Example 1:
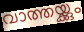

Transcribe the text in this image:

വാത്തയ്ക്കും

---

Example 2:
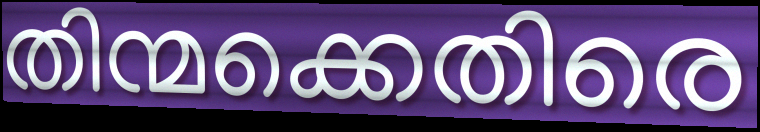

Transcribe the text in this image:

തിന്മക്കെതിരെ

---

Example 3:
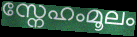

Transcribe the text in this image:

സ്നേഹംമൂലം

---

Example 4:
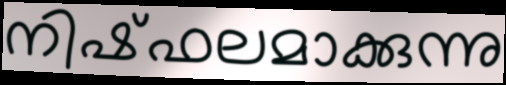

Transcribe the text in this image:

നിഷ്ഫലമാക്കുന്നു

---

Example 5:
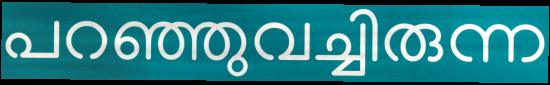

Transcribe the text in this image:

പറഞ്ഞുവച്ചിരുന്ന